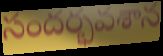
సందర్భవశాన